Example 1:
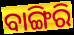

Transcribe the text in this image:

ବାଙ୍ଗିରି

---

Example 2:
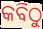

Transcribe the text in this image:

କବିଠୁ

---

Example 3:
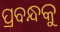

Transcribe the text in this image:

ପ୍ରବନ୍ଧକୁ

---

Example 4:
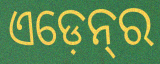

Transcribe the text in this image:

ଏଡ଼େନ୍‍ର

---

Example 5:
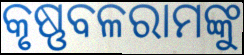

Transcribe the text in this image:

କୃଷ୍ଣବଳରାମଙ୍କୁ